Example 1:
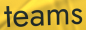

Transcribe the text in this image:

teams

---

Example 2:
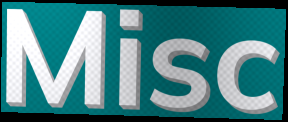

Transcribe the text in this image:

Misc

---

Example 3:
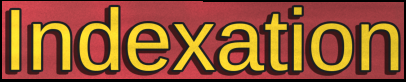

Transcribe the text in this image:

Indexation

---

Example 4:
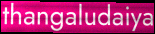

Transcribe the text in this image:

thangaludaiya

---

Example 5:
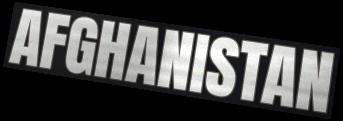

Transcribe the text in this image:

AFGHANISTAN